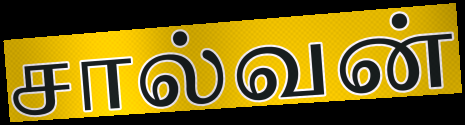
சால்வன்